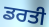
ਡਰਤੀ